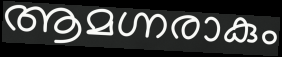
ആമഗ്നരാകും